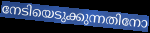
നേടിയെടുക്കുന്നതിനോ